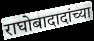
राघोबादादांच्या